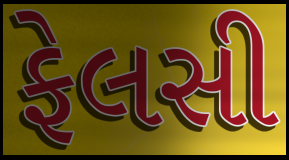
ફેલસી